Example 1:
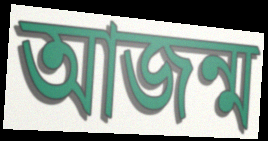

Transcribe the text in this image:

আজন্ম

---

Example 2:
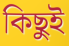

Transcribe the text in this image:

কিছুই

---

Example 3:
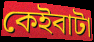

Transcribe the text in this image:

কেইবাটা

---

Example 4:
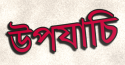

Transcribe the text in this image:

উপযাচি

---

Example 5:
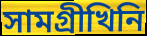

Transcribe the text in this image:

সামগ্ৰীখিনি